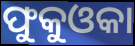
ଫୁକୁଓକା